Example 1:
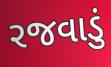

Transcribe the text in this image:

રજવાડું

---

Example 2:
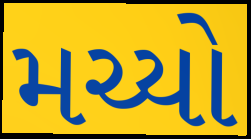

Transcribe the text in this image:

મચ્યો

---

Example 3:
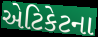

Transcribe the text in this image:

એટિકેટના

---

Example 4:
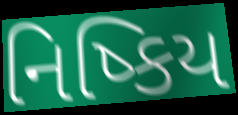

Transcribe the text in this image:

નિષ્કિય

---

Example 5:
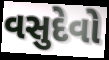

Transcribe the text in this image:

વસુદેવો